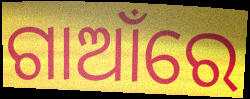
ଗାଆଁରେ